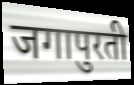
जगापुरती